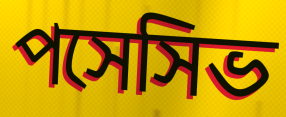
পসেসিভ